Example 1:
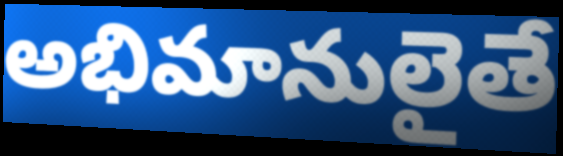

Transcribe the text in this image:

అభిమానులైతే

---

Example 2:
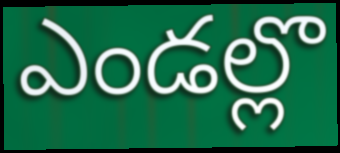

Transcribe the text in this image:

ఎండల్లొ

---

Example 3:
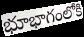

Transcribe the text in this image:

భూభాగంలోకి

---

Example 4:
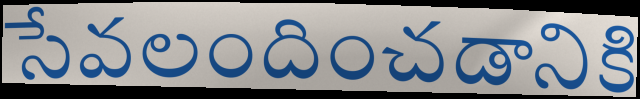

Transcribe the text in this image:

సేవలందించడానికి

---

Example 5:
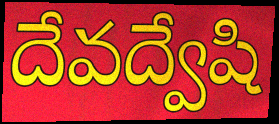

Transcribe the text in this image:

దేవద్వేషి